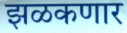
झळकणार